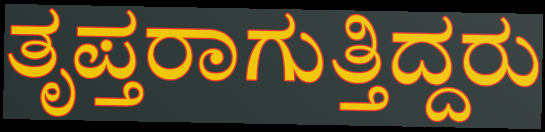
ತೃಪ್ತರಾಗುತ್ತಿದ್ದರು